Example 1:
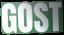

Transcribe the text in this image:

GOST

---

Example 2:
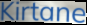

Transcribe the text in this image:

Kirtane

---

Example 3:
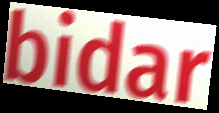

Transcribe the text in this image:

bidar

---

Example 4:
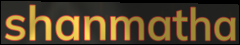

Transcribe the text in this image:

shanmatha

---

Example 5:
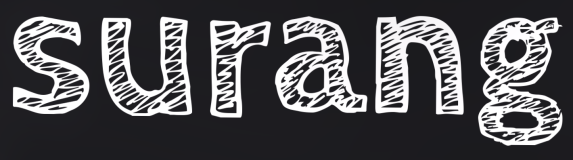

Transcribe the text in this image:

surang